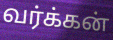
வர்க்கன்